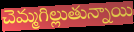
చెమ్మగిల్లుతున్నాయి